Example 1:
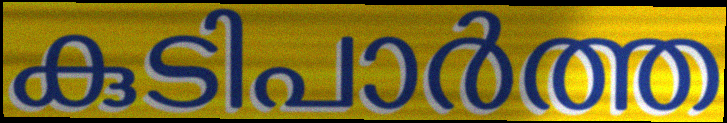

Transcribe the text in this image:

കുടിപാർത്ത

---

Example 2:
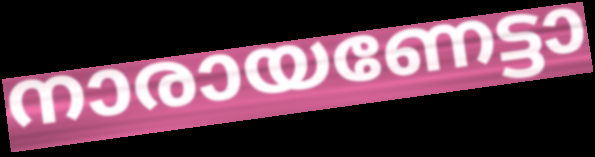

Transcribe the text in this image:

നാരായണേട്ടാ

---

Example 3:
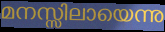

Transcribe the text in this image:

മനസ്സിലായെന്നു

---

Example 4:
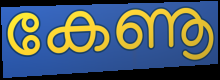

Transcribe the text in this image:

കേണൂ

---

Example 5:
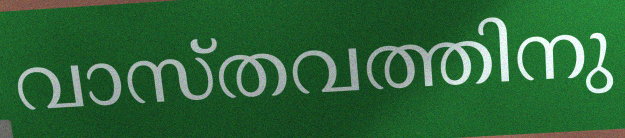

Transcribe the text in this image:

വാസ്തവത്തിനു